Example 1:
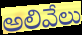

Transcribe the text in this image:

అలివేలు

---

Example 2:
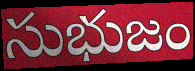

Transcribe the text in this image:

సుభుజం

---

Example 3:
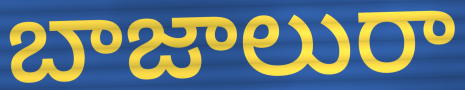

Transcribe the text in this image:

బాజాలురా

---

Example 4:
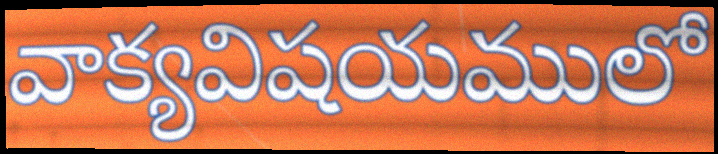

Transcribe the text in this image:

వాక్యవిషయములో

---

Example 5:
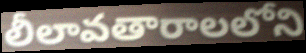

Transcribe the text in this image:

లీలావతారాలలోని